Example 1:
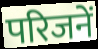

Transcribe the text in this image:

परिजनें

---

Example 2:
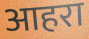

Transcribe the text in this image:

आहरा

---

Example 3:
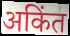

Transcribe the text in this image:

अकिंत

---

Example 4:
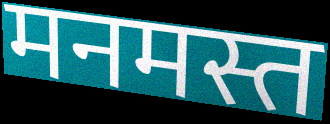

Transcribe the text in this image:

मनमस्त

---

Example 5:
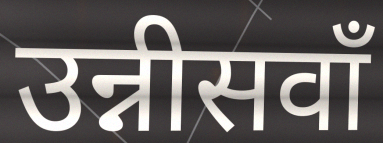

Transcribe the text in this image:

उन्नीसवाँ